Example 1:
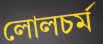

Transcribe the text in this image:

লোলচর্ম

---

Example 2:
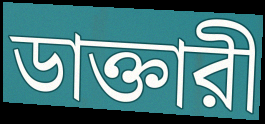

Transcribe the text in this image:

ডাক্তারী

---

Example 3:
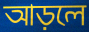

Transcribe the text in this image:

আড়লে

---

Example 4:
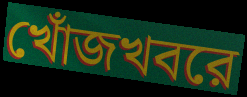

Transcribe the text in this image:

খোঁজখবরে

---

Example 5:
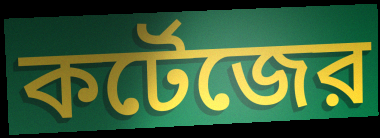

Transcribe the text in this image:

কর্টেজের